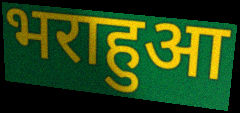
भराहुआ